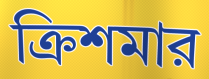
ক্রিশমার